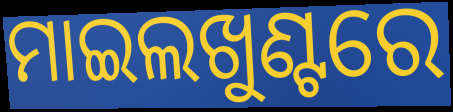
ମାଇଲଖୁଣ୍ଟରେ